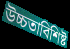
উচ্চতাবিশিষ্ট